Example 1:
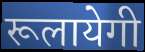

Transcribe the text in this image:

रूलायेगी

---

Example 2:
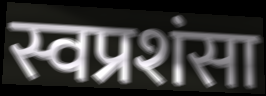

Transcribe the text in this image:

स्वप्रशंसा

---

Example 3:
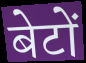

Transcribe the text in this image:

बेटों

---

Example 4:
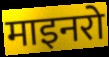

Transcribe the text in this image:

माइनरो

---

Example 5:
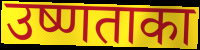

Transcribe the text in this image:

उष्णताका